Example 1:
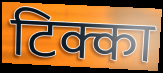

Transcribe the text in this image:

टिक्का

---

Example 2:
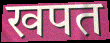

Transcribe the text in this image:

खपत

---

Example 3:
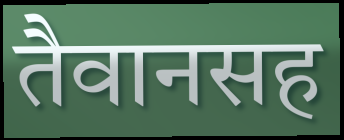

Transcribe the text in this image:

तैवानसह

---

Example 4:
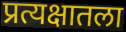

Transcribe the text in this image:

प्रत्यक्षातला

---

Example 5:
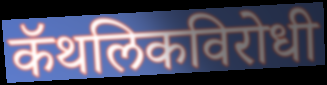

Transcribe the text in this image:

कॅथलिकविरोधी